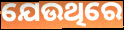
ଯେଉଥିରେ